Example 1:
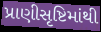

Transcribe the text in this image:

પ્રાણીસૃષ્ટિમાંથી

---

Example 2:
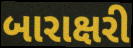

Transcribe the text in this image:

બારાક્ષરી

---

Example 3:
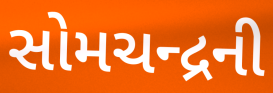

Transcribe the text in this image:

સોમચન્દ્રની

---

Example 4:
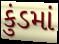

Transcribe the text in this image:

કુંડમાં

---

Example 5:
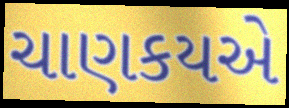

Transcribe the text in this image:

ચાણકયએ